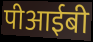
पीआईबी